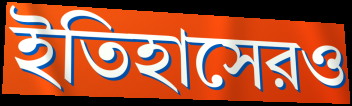
ইতিহাসেরও